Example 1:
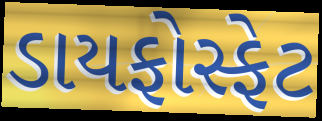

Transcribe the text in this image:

ડાયફોસ્ફેટ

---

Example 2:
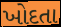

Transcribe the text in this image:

ખોદતા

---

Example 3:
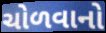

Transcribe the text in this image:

ચોળવાનો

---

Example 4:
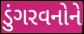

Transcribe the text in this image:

ડુંગરવનોને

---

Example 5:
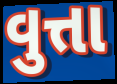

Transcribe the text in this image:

વુત્તા